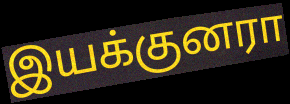
இயக்குனரா